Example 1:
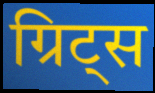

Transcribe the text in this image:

ग्रिट्स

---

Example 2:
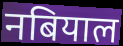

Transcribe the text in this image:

नबियाल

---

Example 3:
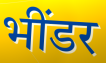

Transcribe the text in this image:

भींडर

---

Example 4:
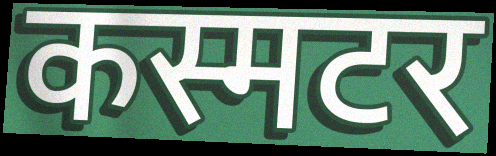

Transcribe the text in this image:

कस्मटर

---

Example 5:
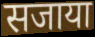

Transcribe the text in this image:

सजाया